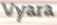
Vyara